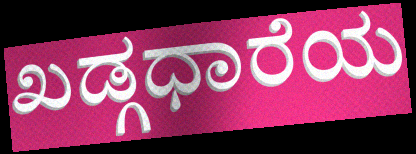
ಖಡ್ಗಧಾರೆಯ